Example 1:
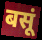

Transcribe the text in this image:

बसूं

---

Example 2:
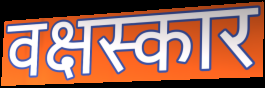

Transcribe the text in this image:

वक्षस्कार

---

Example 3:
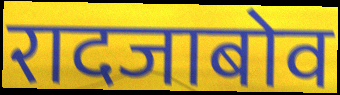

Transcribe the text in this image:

रादजाबोव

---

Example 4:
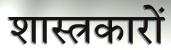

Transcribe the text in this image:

शास्त्रकारों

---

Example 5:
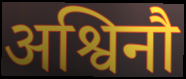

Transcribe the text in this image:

अश्विनौ